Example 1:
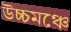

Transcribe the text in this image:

উচ্চমঞ্চে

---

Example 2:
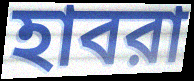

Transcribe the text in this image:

হাবরা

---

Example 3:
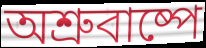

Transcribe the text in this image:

অশ্রুবাষ্পে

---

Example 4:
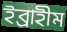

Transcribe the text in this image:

ইব্রাহীম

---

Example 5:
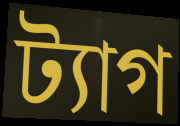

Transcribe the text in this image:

ট্যাগ